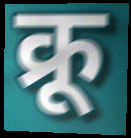
क्रू